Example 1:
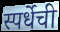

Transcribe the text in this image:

स्पर्धेची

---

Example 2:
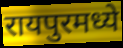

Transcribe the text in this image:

रायपुरमध्ये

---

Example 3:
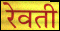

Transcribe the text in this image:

रेवती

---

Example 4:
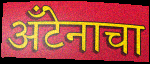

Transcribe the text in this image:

अँटेनाचा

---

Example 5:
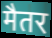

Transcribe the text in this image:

मैतर